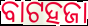
ବାଟହଜା